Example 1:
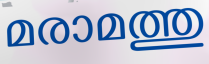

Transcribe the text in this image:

മരാമത്തു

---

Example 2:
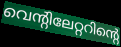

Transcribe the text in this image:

വെന്റിലേറ്ററിന്റെ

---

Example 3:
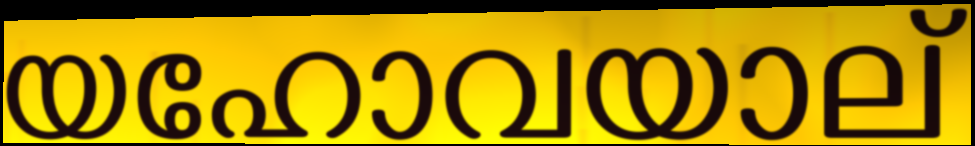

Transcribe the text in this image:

യഹോവയാല്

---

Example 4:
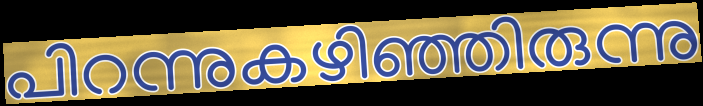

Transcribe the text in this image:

പിറന്നുകഴിഞ്ഞിരുന്നു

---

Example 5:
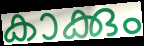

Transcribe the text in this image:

കാക്കും